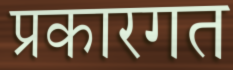
प्रकारगत